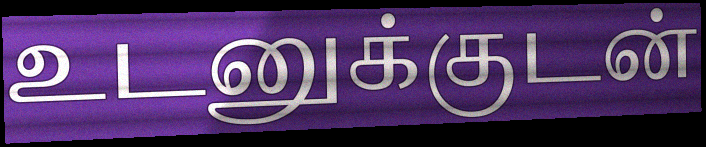
உடனுக்குடன்